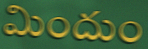
మిందుం